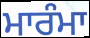
ਮਾਰੰਮਾ